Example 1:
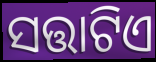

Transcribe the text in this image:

ସତ୍ତାଟିଏ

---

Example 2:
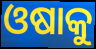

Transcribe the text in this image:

ଓଷାକୁ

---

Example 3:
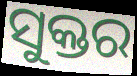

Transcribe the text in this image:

ସୁକ୍ତର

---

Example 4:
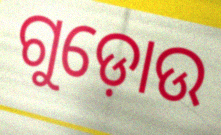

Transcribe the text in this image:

ଗୁଡ଼ୋଉ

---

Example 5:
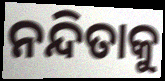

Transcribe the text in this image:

ନନ୍ଦିତାକୁ